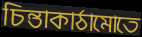
চিন্তাকাঠামোতে